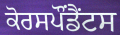
ਕੋਰਸਪੌਂਡੈਂਟਸ